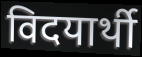
विदयार्थी